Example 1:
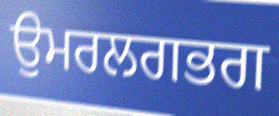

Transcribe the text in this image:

ਉੁਮਰਲਗਭਗ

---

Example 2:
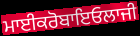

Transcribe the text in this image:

ਮਾਈਕਰੋਬਾਇਓਲਾਜੀ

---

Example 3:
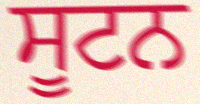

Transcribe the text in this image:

ਸੂਟਨ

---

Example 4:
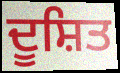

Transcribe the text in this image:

ਦੂਸ਼ਿਤ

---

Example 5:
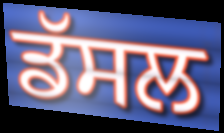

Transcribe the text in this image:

ਡੱਸਲ